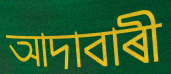
আদাবাৰী